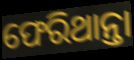
ଫେରିଥାନ୍ତା